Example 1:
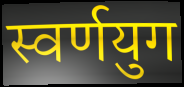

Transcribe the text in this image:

स्वर्णयुग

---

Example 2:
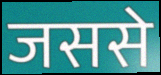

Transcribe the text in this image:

जससे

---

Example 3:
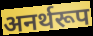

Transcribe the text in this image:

अनर्थरूप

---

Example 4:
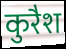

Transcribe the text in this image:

कुरैश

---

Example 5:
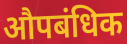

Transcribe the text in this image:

औपबंधिक